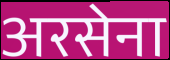
अरसेना